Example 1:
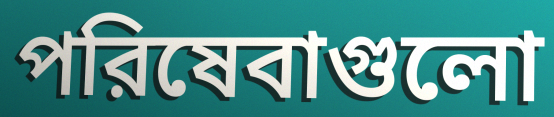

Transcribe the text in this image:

পরিষেবাগুলো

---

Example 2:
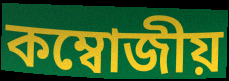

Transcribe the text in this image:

কম্বোজীয়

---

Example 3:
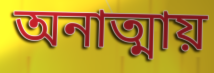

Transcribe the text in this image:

অনাত্মায়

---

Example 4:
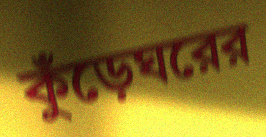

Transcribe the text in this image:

কুঁড়েঘরের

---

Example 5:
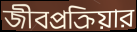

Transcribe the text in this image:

জীবপ্রক্রিয়ার